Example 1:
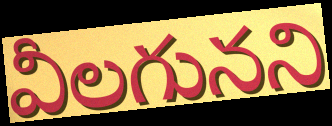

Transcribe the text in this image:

వీలగునని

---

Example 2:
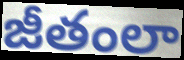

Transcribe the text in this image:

జీతంలా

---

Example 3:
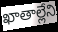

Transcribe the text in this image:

ఖాతాల్లేని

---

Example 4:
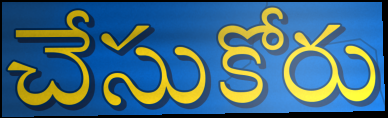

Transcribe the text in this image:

చేసుకోరు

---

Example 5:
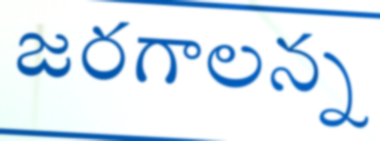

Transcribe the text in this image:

జరగాలన్న